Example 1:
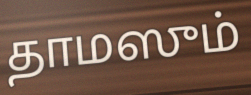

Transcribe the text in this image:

தாமஸும்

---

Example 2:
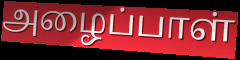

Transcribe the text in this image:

அழைப்பாள்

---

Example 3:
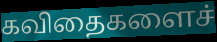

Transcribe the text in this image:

கவிதைகளைச்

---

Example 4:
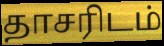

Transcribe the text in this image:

தாசரிடம்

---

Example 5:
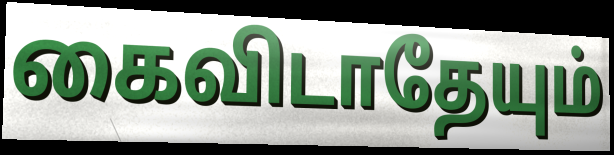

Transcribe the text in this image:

கைவிடாதேயும்